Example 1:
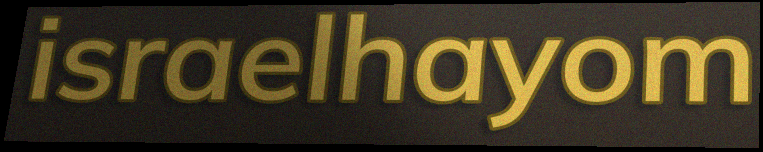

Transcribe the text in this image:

israelhayom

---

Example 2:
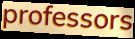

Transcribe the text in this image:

professors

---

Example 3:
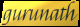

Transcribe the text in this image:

gurunath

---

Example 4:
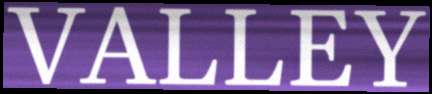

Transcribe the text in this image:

VALLEY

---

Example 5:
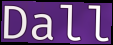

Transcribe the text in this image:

Dall